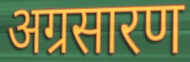
अग्रसारण